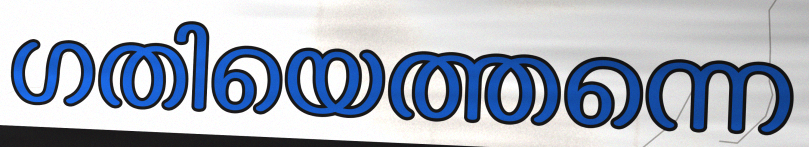
ഗതിയെത്തന്നെ